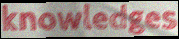
knowledges